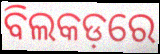
ବିଲକଡ଼ରେ